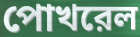
পোখরেল